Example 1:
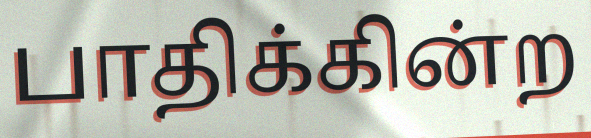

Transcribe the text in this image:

பாதிக்கின்ற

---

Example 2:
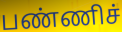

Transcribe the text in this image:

பண்ணிச்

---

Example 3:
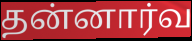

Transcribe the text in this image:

தன்னார்வ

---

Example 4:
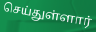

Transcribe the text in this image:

செய்துள்ளார்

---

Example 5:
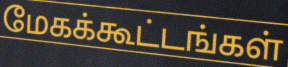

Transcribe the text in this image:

மேகக்கூட்டங்கள்